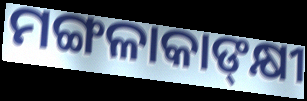
ମଙ୍ଗଳାକାଙ୍‍କ୍ଷୀ